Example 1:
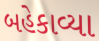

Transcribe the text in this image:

બહેકાવ્યા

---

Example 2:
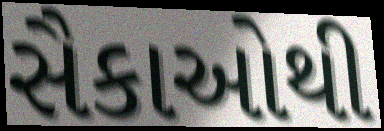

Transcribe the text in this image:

સૈકાઓથી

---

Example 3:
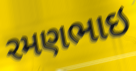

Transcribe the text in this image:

રમણભાઇ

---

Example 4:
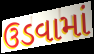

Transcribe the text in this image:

ઉડવામાં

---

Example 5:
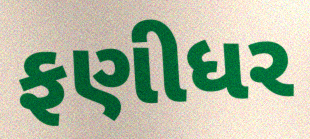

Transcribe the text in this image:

ફણીધર